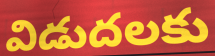
విడుదలకు